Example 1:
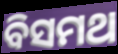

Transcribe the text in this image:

ବିସମଥ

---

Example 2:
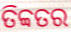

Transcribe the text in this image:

ତିବ୍ବତର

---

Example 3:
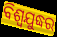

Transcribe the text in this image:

ବିଶ୍ୱଯୁଦ୍ଧର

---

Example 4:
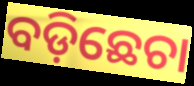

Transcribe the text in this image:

ବଡ଼ିଛେଚା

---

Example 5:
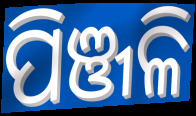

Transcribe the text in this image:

ପିଞ୍ଜଳି